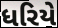
ધરિયે